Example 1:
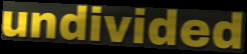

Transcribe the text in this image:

undivided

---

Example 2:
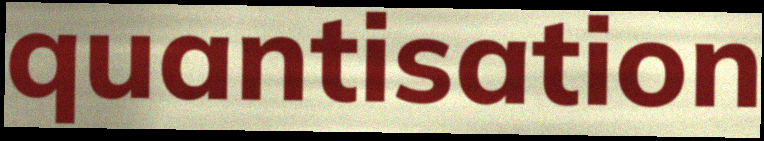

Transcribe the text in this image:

quantisation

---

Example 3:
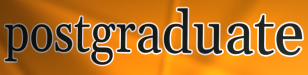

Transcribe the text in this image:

postgraduate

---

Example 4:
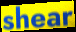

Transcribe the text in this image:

shear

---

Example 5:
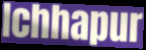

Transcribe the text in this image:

Ichhapur